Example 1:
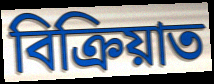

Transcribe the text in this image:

বিক্ৰিয়াত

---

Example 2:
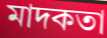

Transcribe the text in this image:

মাদকতা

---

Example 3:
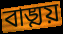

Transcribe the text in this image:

বাঙ্ময়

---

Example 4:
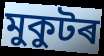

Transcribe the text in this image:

মুকুটৰ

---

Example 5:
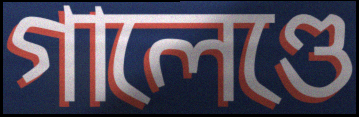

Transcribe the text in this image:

গালেণ্ডে